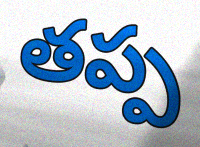
తప్ప